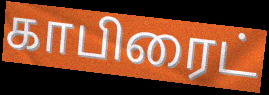
காபிரைட்